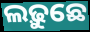
ଲଢ଼ୁଛେ